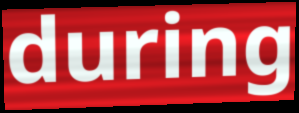
during